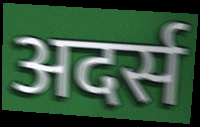
अदर्स